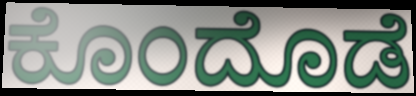
ಕೊಂದೊಡೆ